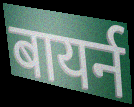
बायर्न